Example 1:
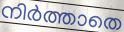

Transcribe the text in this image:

നിർത്താതെ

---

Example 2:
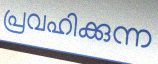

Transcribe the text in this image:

പ്രവഹിക്കുന്ന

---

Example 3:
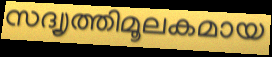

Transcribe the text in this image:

സദ്വൃത്തിമൂലകമായ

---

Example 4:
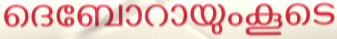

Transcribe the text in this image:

ദെബോറായുംകൂടെ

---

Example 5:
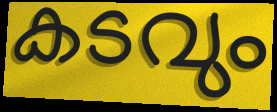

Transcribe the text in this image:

കടവും